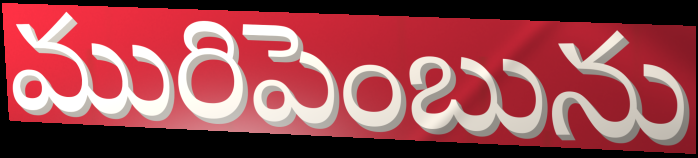
మురిపెంబును